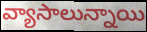
వ్యాసాలున్నాయి